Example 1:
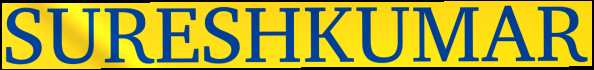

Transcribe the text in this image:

SURESHKUMAR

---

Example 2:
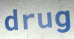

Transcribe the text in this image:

drug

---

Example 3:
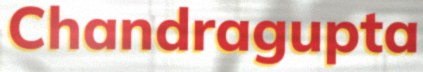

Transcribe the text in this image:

Chandragupta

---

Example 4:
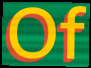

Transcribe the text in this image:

Of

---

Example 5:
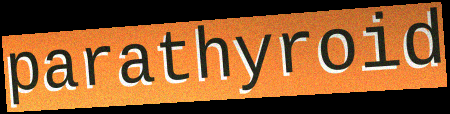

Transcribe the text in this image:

parathyroid